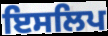
ਇਸਲਿਪ